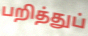
பறித்துப்